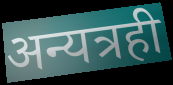
अन्यत्रही